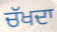
ਚੱਖਦਾ